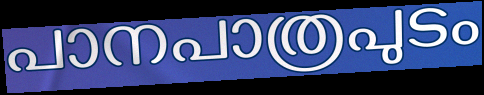
പാനപാത്രപുടം